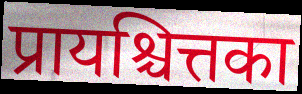
प्रायश्चित्तका